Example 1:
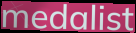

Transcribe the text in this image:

medalist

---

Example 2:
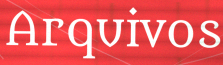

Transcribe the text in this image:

Arquivos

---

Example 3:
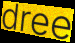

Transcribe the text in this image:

dree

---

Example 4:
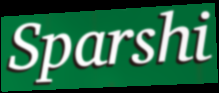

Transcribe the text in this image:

Sparshi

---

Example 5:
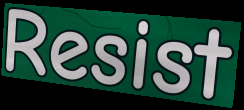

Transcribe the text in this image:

Resist